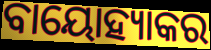
ବାୟୋହ୍ୟାକର